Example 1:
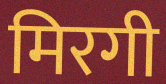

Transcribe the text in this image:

मिरगी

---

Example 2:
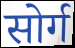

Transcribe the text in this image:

सोर्ग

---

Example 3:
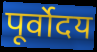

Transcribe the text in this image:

पूर्वोदय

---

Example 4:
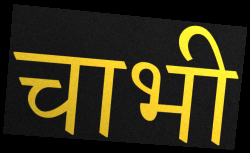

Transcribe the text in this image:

चाभी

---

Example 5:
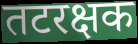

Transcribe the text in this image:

तटरक्षक